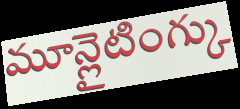
మూన్లైటింగ్కు